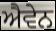
ਐਵੇਨ